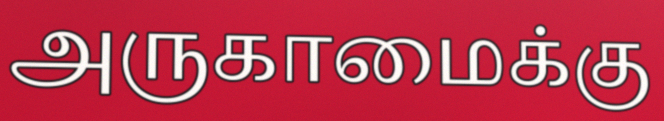
அருகாமைக்கு